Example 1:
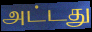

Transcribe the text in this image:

அட்டது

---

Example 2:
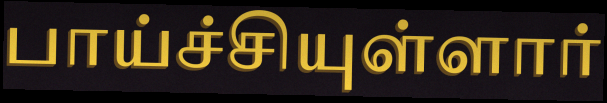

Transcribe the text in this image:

பாய்ச்சியுள்ளார்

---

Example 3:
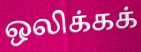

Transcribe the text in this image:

ஒலிக்கக்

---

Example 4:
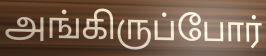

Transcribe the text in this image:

அங்கிருப்போர்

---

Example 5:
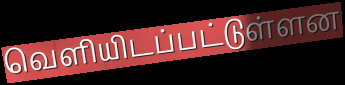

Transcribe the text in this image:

வெளியிடப்பட்டுள்ளன